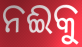
ନଈକୁ